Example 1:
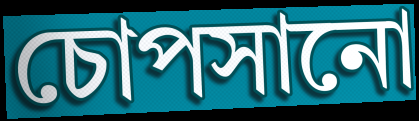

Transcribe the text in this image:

চোপসানো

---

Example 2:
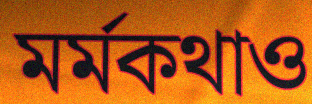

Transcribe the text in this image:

মর্মকথাও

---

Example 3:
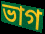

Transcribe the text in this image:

ভাগ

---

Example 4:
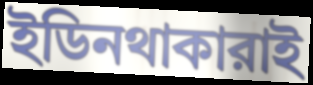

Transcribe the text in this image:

ইডিনথাকারাই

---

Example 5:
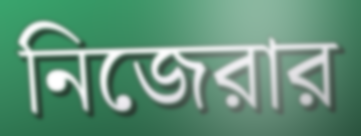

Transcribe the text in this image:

নিজেরার